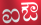
ಐಔ